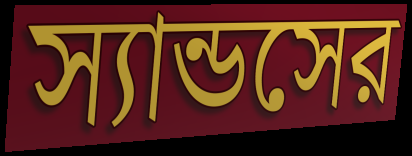
স্যান্ডসের